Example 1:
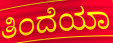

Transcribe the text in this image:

ತಿಂದೆಯಾ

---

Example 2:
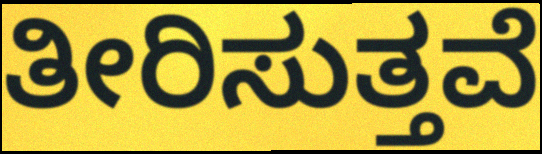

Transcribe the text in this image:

ತೀರಿಸುತ್ತವೆ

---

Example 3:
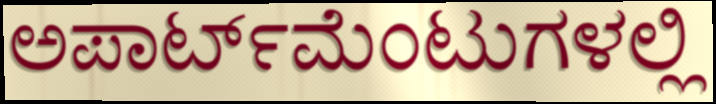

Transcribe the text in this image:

ಅಪಾರ್ಟ್‌ಮೆಂಟುಗಳಲ್ಲಿ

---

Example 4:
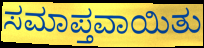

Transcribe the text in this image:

ಸಮಾಪ್ತವಾಯಿತು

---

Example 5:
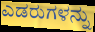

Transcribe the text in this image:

ಎಡರುಗಳನ್ನು